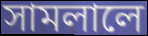
সামলালে